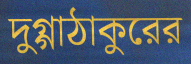
দুগ্গাঠাকুরের